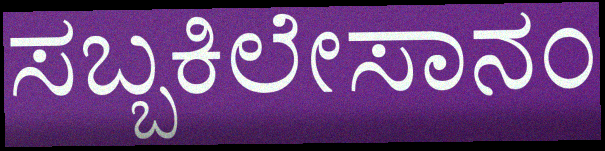
ಸಬ್ಬಕಿಲೇಸಾನಂ